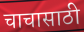
चाचासाठी